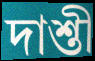
দাশ্তী